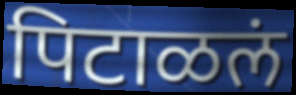
पिटाळलं